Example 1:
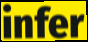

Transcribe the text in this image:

infer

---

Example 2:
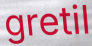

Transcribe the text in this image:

gretil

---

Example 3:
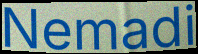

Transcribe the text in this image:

Nemadi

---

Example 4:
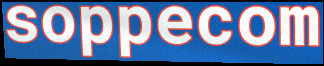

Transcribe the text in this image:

soppecom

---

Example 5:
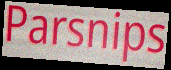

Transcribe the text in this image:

Parsnips